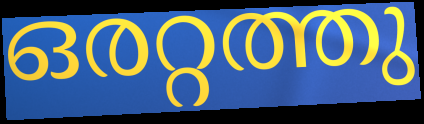
ഒരറ്റത്തു